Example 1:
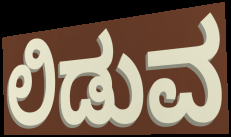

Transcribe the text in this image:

ಲಿಡುವ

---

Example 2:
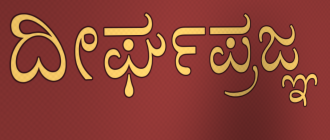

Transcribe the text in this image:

ದೀರ್ಘಪ್ರಜ್ಞ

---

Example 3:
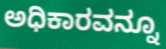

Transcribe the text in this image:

ಅಧಿಕಾರವನ್ನೂ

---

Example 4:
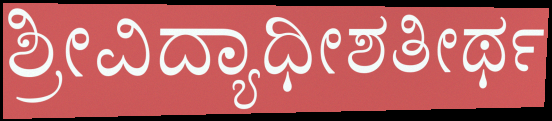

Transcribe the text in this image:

ಶ್ರೀವಿದ್ಯಾಧೀಶತೀರ್ಥ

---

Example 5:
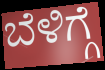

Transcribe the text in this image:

ಬೆಳಿಗ್ಗೆ